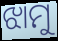
ଝାମୁ